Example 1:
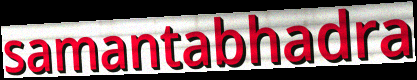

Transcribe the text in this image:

samantabhadra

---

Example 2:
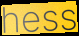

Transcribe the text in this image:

hess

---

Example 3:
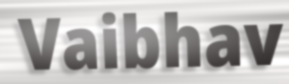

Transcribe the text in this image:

Vaibhav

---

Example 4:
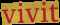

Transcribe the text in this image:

vivit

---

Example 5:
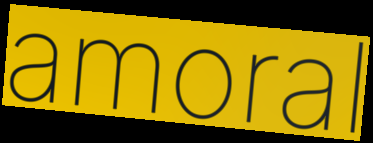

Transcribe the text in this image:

amoral